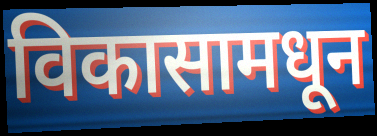
विकासामधून